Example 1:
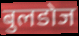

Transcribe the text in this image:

बुलडोज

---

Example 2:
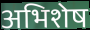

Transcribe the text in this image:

अभिशेष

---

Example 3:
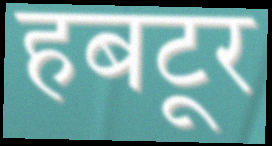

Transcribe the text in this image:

हबटूर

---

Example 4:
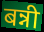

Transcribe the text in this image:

बन्नी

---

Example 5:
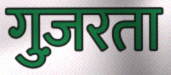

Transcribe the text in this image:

गुज़रता